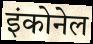
इंकोनेल